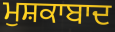
ਮੁਸ਼ਕਾਬਾਦ